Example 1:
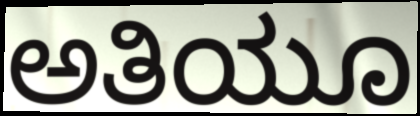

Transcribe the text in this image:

ಅತಿಯೂ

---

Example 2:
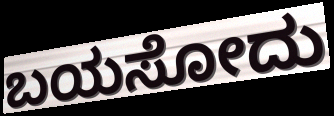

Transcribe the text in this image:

ಬಯಸೋದು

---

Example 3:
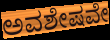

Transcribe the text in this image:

ಅವಶೇಷವೇ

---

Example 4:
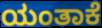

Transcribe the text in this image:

ಯಂತಾಕೆ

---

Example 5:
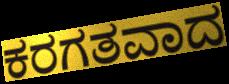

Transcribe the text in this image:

ಕರಗತವಾದ